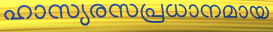
ഹാസ്യരസപ്രധാനമായ